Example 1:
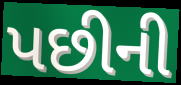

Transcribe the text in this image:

પછીની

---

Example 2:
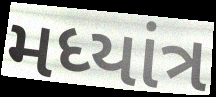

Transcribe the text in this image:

મધ્યાંત્ર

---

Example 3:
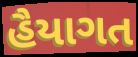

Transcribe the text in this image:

હૈયાગત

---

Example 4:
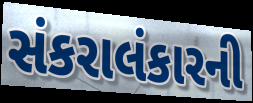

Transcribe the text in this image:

સંકરાલંકારની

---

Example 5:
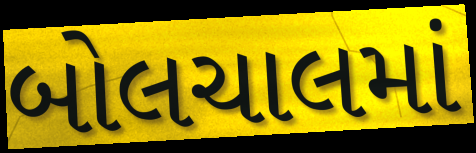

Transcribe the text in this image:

બોલચાલમાં